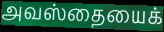
அவஸ்தையைக்